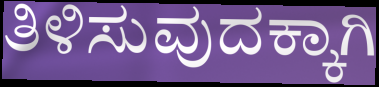
ತಿಳಿಸುವುದಕ್ಕಾಗಿ